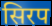
सिरप